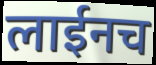
लाईनच